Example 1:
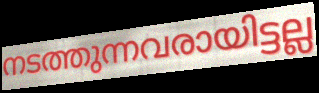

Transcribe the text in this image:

നടത്തുന്നവരായിട്ടല്ല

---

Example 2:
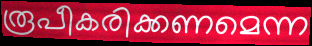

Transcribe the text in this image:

രൂപീകരിക്കണമെന്ന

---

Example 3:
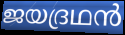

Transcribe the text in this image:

ജയദ്രഥൻ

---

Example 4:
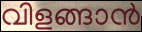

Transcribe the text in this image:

വിളങ്ങാൻ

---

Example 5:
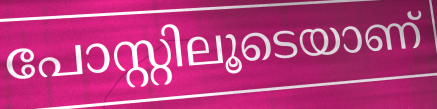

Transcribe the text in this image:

പോസ്റ്റിലൂടെയാണ്